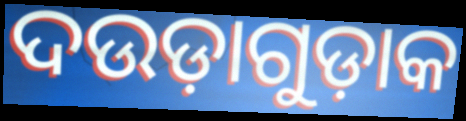
ଦଉଡ଼ାଗୁଡ଼ାକ